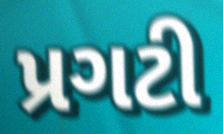
પ્રગટી